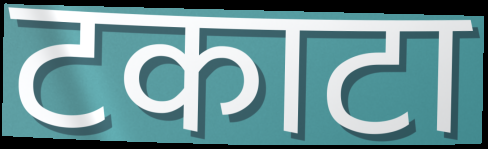
टकाटा